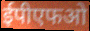
ईपीएफओ